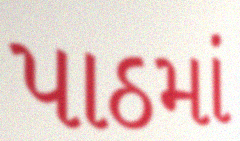
પાઠમાં